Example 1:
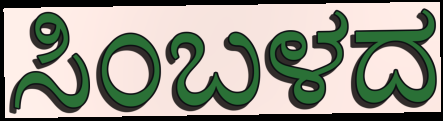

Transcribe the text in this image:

ಸಿಂಬಳದ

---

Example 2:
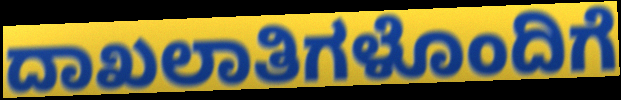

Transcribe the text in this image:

ದಾಖಲಾತಿಗಳೊಂದಿಗೆ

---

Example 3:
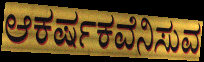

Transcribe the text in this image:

ಆಕರ್ಷಕವೆನಿಸುವ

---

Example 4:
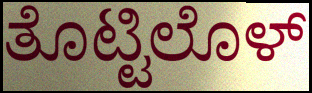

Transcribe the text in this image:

ತೊಟ್ಟಿಲೊಳ್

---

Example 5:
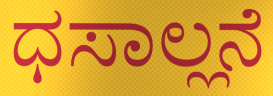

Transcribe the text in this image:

ಧಸಾಲ್ಲನೆ